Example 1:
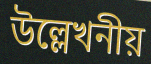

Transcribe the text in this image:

উল্লেখনীয়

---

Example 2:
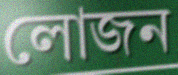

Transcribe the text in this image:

লোজন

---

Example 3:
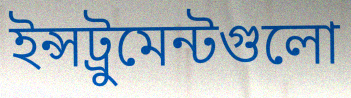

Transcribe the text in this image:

ইন্সট্রুমেন্টগুলো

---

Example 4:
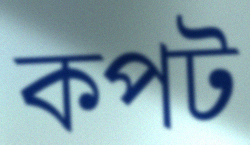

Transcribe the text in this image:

কপট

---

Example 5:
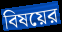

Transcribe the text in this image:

বিষয়ের